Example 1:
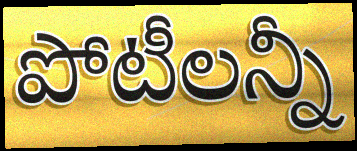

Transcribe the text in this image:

పోటీలన్నీ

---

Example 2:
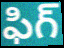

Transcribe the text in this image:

ఫిగ్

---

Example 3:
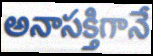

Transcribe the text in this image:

అనాసక్తిగానే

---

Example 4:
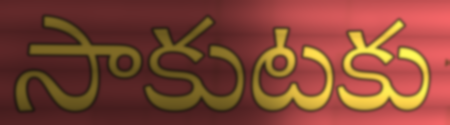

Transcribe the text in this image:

సాకుటకు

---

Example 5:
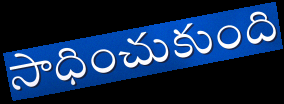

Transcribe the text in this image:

సాధించుకుంది